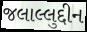
જલાલ્લુદ્દીન